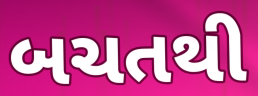
બચતથી